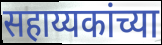
सहाय्यकांच्या